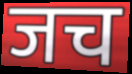
जच